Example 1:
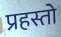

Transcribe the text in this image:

प्रहस्तो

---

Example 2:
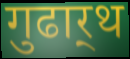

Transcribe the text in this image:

गुढार्थ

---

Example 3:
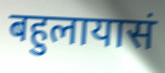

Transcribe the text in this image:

बहुलायासं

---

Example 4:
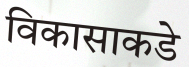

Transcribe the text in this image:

विकासाकडे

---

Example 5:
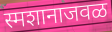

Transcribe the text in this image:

स्मशानाजवळ